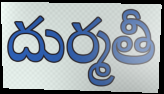
దుర్మతీ